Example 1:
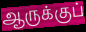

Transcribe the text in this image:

ஆருக்குப்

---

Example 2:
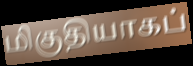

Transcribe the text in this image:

மிகுதியாகப்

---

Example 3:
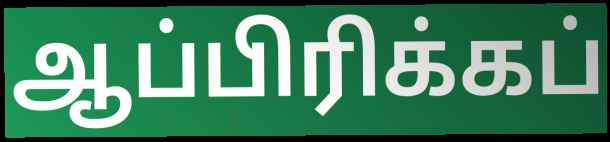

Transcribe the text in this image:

ஆப்பிரிக்கப்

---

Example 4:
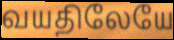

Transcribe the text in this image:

வயதிலேயே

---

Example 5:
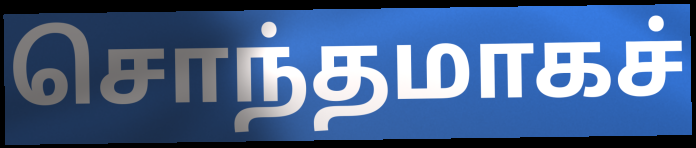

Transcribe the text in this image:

சொந்தமாகச்